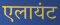
एलायंट